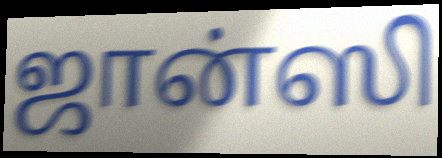
ஜான்ஸி